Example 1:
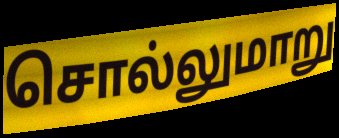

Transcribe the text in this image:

சொல்லுமாறு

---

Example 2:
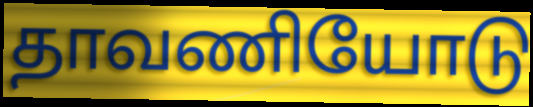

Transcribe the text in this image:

தாவணியோடு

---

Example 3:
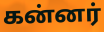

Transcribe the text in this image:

கன்னர்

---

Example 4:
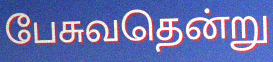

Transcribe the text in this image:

பேசுவதென்று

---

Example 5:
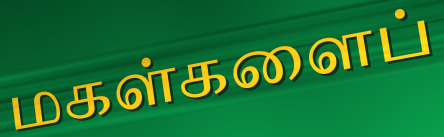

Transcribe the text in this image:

மகள்களைப்